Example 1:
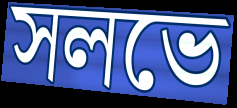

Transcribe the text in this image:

সলভে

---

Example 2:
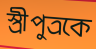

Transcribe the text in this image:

স্ত্রীপুত্রকে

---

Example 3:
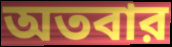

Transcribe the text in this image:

অতবার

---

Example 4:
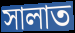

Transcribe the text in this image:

সালাত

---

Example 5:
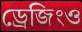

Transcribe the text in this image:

ড্রেজিংও